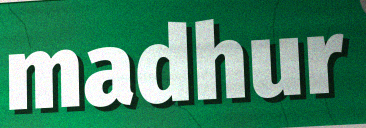
madhur